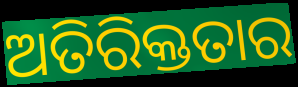
ଅତିରିକ୍ତତାର